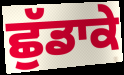
ਛੁੱਡਾਕੇ